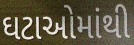
ઘટાઓમાંથી